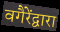
वगैरेंद्वारा